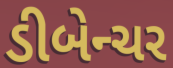
ડીબેન્ચર